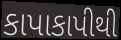
કાપાકાપીથી